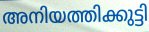
അനിയത്തിക്കുട്ടി